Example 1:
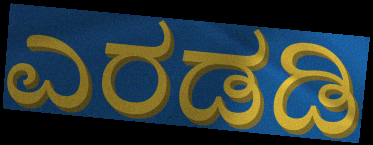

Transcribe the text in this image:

ಎರಡಡಿ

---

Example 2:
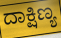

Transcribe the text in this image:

ದಾಕ್ಷಿಣ್ಯ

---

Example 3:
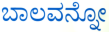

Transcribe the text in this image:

ಬಾಲವನ್ನೋ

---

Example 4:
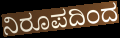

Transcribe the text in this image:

ನಿರೂಪದಿಂದ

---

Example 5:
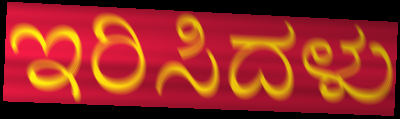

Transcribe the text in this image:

ಇರಿಸಿದಳು